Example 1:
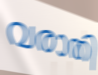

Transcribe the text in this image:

വരാതി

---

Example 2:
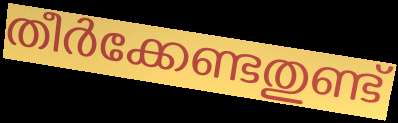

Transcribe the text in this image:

തീർക്കേണ്ടതുണ്ട്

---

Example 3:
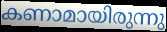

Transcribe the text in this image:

കണാമായിരുന്നു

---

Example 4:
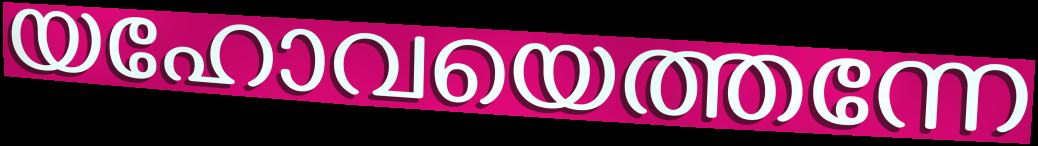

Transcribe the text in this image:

യഹോവയെത്തന്നേ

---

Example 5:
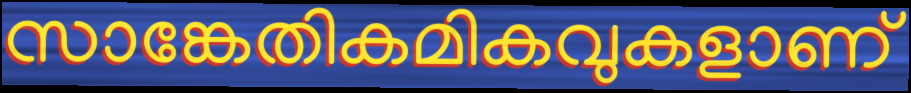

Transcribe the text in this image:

സാങ്കേതികമികവുകളാണ്